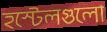
হস্টেলগুলো